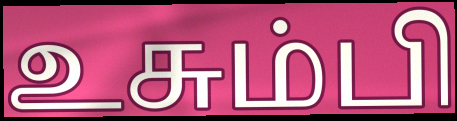
உசும்பி